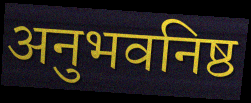
अनुभवनिष्ठ